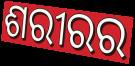
ଶରୀରର